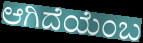
ಆಗಿದೆಯೆಂಬ